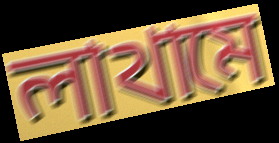
লাথামে